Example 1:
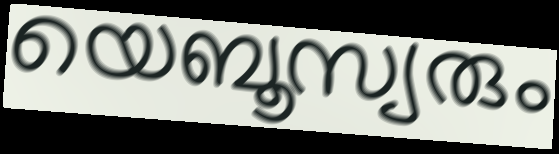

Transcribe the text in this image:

യെബൂസ്യരും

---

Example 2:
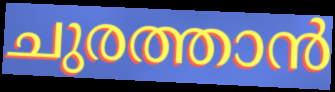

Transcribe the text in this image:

ചുരത്താൻ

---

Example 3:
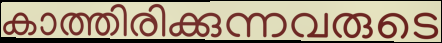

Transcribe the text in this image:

കാത്തിരിക്കുന്നവരുടെ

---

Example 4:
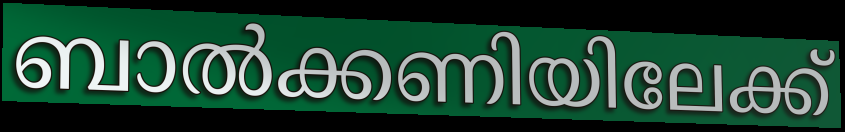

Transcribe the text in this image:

ബാൽക്കണിയിലേക്ക്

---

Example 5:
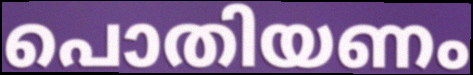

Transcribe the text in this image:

പൊതിയണം